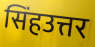
सिंहउत्तर